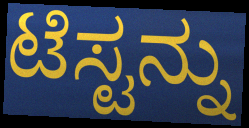
ಟೆಸ್ಟನ್ನು